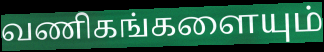
வணிகங்களையும்